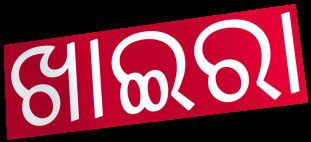
ଖାଇରା